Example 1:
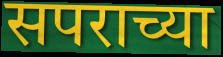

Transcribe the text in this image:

सपराच्या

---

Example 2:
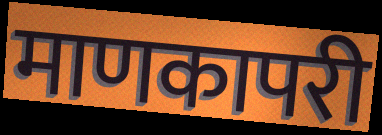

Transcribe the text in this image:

माणकापरी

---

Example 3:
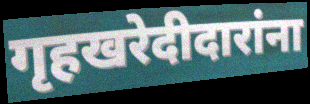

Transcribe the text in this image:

गृहखरेदीदारांना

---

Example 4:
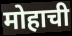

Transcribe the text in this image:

मोहाची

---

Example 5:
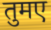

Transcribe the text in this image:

तुमए